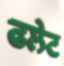
ਫਲੇਟ